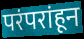
परंपरांहून